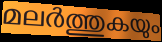
മലർത്തുകയും